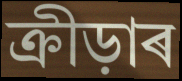
ক্ৰীড়াৰ